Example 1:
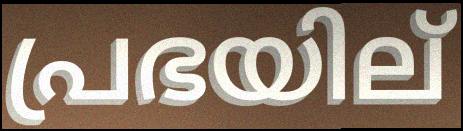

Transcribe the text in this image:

പ്രഭയില്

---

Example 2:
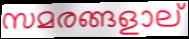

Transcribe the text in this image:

സമരങ്ങളാല്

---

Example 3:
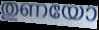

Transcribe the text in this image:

തുണയോ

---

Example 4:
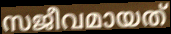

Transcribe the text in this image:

സജീവമായത്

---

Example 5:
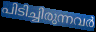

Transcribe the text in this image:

പിടിച്ചിരുന്നവർ